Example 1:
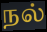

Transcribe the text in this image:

நல்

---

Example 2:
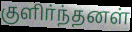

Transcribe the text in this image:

குளிர்ந்தனள்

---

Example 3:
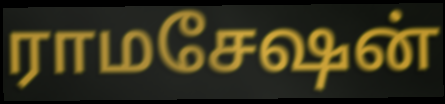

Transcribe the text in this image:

ராமசேஷன்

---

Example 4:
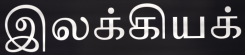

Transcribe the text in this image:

இலக்கியக்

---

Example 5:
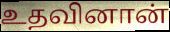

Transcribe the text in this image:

உதவினான்